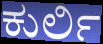
ಕುರ್ಲಿ